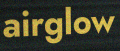
airglow